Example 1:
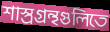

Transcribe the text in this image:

শাস্ত্রগ্রন্থগুলিতে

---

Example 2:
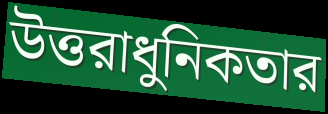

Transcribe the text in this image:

উত্তরাধুনিকতার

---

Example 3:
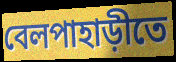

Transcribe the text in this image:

বেলপাহাড়ীতে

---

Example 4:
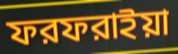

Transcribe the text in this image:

ফরফরাইয়া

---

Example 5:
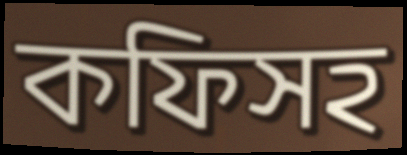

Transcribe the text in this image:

কফিসহ